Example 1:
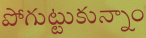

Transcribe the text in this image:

పోగుట్టుకున్నాం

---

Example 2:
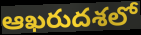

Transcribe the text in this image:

ఆఖరుదశలో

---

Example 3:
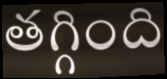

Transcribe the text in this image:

తగ్గింది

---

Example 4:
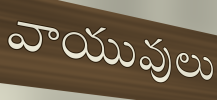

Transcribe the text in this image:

వాయువులు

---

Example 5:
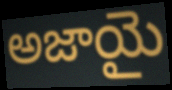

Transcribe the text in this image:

అజాయై